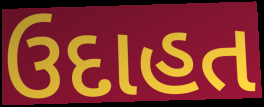
ઉદાહત